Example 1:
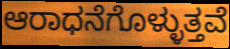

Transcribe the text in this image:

ಆರಾಧನೆಗೊಳ್ಳುತ್ತವೆ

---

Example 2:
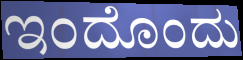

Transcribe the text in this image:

ಇಂದೊಂದು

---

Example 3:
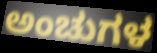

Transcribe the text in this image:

ಅಂಚುಗಳ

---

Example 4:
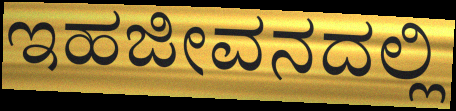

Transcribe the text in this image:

ಇಹಜೀವನದಲ್ಲಿ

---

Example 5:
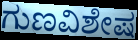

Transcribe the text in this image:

ಗುಣವಿಶೇಷ